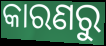
କାରଣରୁ